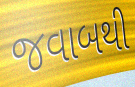
જવાબથી